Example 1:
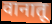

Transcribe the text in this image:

वानातू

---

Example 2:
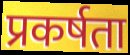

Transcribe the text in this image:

प्रकर्षता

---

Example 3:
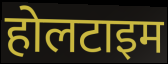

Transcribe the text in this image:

होलटाइम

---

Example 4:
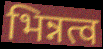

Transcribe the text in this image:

भिन्नत्व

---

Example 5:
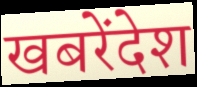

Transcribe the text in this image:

खबरेंदेश